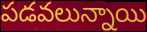
పడవలున్నాయి